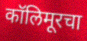
कॉलिमूरचा